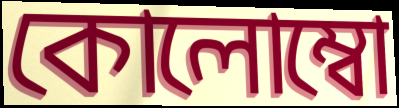
কোলোম্বো